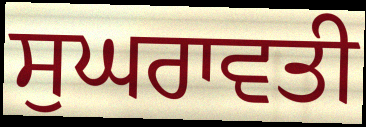
ਸੁਘਰਾਵਤੀ